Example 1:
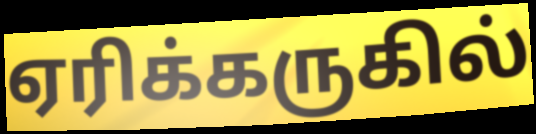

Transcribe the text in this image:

ஏரிக்கருகில்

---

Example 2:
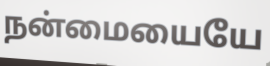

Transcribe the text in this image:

நன்மையையே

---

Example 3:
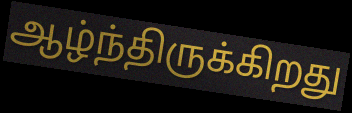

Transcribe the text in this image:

ஆழ்ந்திருக்கிறது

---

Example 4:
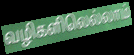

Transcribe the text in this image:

வழிகளிலெல்லாம்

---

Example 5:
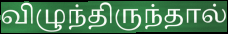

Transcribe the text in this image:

விழுந்திருந்தால்